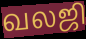
வலஜி